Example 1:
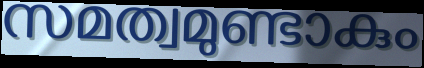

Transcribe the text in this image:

സമത്വമുണ്ടാകും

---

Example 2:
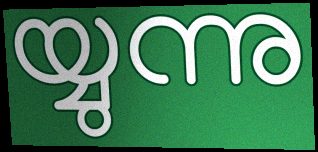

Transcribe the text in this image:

യ്യുന്നു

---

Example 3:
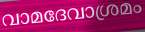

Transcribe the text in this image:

വാമദേവാശ്രമം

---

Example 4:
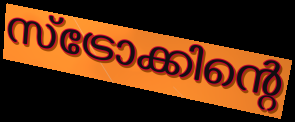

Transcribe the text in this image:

സ്ട്രോക്കിന്റെ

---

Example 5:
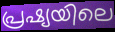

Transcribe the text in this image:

പ്രഷ്യയിലെ